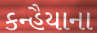
કન્હૈયાના